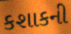
કશાકની